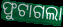
ଫୁଟାଗଲା